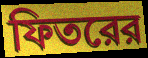
ফিতরের